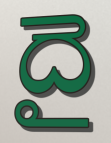
దై